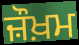
ਜ਼ੌਖ਼ਮ